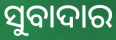
ସୁବାଦାର